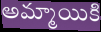
అమ్మాయికి